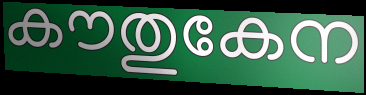
കൗതുകേന